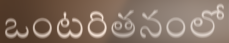
ఒంటరితనంలో